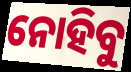
ନୋହିବୁ